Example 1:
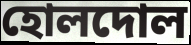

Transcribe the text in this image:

হোলদোল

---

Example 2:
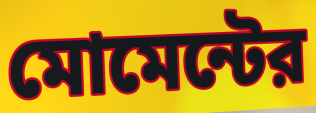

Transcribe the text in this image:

মোমেন্টের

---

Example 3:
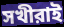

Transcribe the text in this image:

সখীরাই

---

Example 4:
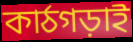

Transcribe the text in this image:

কাঠগড়াই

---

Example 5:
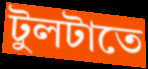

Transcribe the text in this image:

টুলটাতে